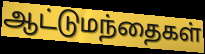
ஆட்டுமந்தைகள்